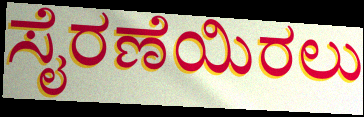
ಸೈರಣೆಯಿರಲು